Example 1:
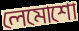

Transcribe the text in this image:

লেমোশো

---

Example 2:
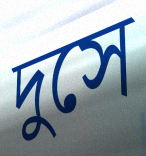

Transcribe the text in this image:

দুসে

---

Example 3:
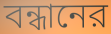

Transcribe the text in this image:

বন্ধানের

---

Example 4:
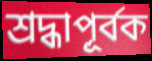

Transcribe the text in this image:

শ্রদ্ধাপূর্বক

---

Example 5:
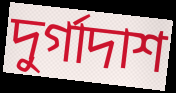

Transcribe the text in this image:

দুর্গাদাশ